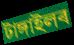
টাঙ্গাইলৰ